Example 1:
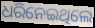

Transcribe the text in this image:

ଧରିନେଇଥିଲେ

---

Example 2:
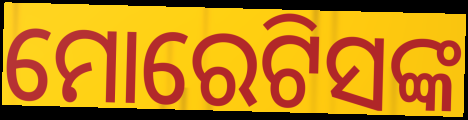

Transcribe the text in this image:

ମୋରେଟିସଙ୍କ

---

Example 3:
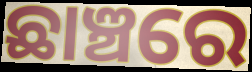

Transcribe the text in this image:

ଛାଞ୍ଚରେ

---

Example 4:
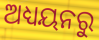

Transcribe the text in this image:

ଅଧ୍ୟୟନରୁ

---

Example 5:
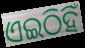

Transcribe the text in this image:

ଏଇଠିହିଁ